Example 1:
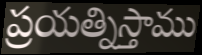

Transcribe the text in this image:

ప్రయత్నిస్తాము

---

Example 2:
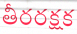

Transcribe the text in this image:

తీరరక్షక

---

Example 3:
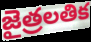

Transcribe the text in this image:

జైత్రలతిక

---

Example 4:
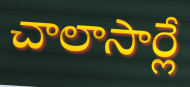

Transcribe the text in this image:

చాలాసార్లే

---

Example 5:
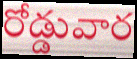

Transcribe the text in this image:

రోడ్డువార